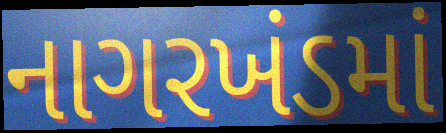
નાગરખંડમાં